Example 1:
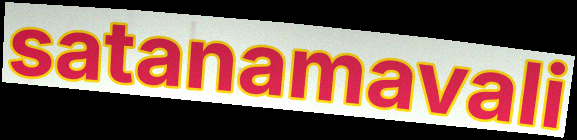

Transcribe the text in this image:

satanamavali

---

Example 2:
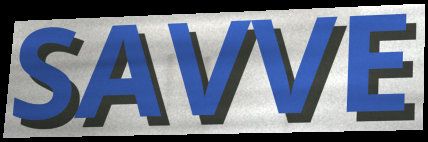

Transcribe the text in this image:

SAVVE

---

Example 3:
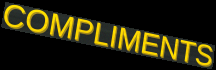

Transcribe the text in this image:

COMPLIMENTS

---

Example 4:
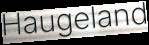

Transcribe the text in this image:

Haugeland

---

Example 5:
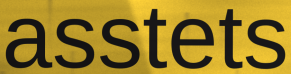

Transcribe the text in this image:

asstets